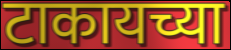
टाकायच्या